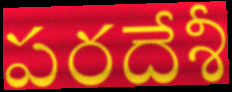
పరదేశీ